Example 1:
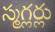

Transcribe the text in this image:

స్మగ్లర్లు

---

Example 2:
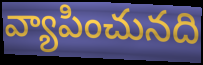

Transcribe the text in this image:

వ్యాపించునది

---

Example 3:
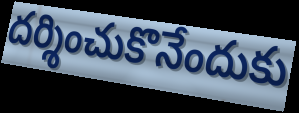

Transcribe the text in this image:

దర్శించుకొనేందుకు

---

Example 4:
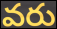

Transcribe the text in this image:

వరు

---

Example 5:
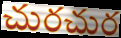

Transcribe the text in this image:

చురచుర